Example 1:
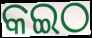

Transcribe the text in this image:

କଇଠ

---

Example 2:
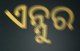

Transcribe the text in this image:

ଏନ୍ନୁର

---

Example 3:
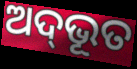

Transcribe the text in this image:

ଅଦ୍‌ଭୂତ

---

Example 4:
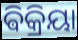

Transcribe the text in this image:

ଵିକ୍ରିୟା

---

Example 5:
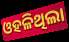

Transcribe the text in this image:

ଓହଳିଥିଲା